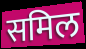
समिल